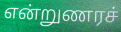
என்றுணரச்